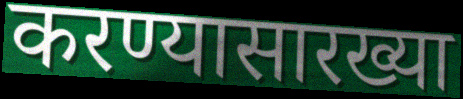
करण्यासारख्या